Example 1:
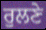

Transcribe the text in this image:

ਰੁਲਣੇ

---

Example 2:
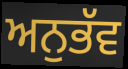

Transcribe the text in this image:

ਅਨੁਭੱਵ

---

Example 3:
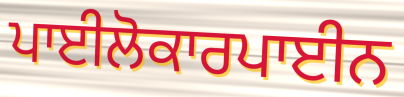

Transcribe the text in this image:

ਪਾਈਲੋਕਾਰਪਾਈਨ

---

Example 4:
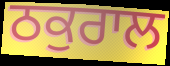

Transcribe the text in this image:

ਠਕੁਰਾਲ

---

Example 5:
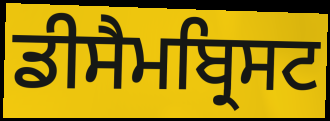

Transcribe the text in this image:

ਡੀਸੈਮਬ੍ਰਿਸਟ